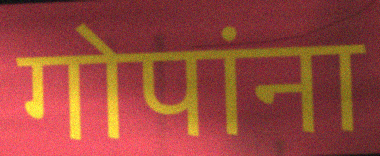
गोपांना